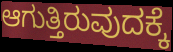
ಆಗುತ್ತಿರುವುದಕ್ಕೆ